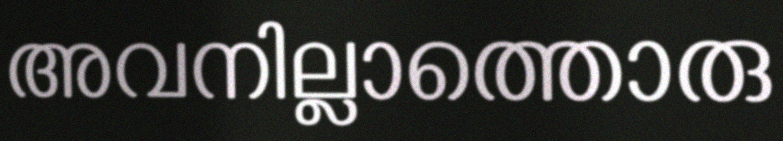
അവനില്ലാത്തൊരു